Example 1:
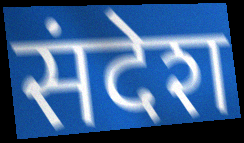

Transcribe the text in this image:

संदेश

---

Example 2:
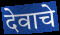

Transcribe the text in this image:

देवाचे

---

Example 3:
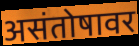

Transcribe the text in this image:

असंतोषावर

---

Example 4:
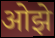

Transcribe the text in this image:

ओझे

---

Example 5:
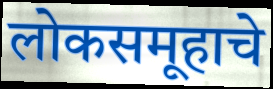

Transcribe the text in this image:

लोकसमूहाचे